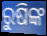
ରୁଷିଙ୍କ